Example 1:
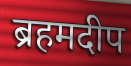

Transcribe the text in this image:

ब्रहमदीप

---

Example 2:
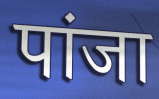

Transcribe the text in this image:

पांजा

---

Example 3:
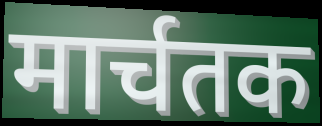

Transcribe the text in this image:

मार्चतक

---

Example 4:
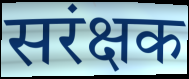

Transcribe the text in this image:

सरंक्षक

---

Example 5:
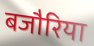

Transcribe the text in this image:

बजौरिया